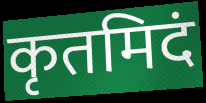
कृतमिदं